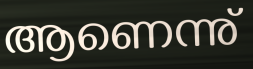
ആണെന്നു്